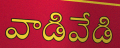
వాడివేడి